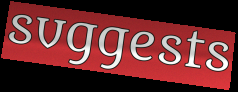
suggests